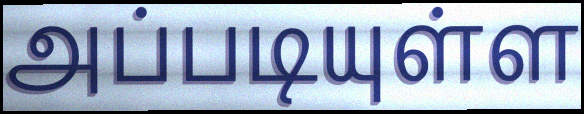
அப்படியுள்ள